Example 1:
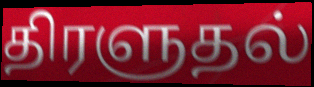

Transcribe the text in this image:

திரளுதல்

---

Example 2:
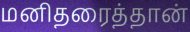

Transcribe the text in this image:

மனிதரைத்தான்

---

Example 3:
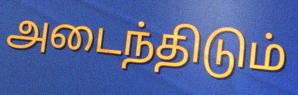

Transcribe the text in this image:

அடைந்திடும்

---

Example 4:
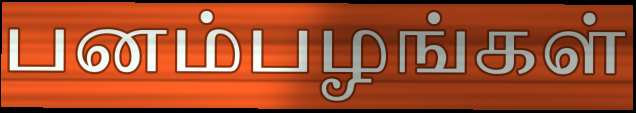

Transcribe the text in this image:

பனம்பழங்கள்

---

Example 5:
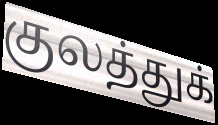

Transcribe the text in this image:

குலத்துக்